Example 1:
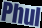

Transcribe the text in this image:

Phul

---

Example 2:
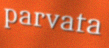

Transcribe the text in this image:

parvata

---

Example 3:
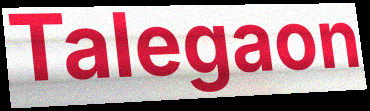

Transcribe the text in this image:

Talegaon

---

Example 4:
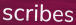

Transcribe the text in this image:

scribes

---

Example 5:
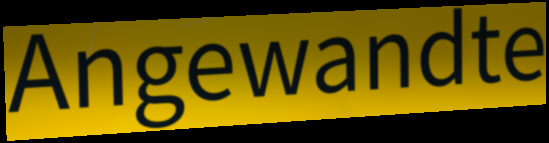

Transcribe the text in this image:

Angewandte